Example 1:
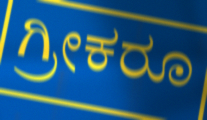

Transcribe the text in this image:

ಗ್ರೀಕರೂ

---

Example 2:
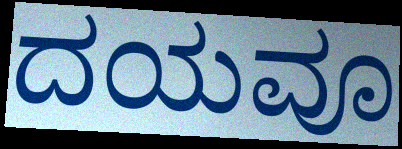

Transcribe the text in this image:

ದಯವೂ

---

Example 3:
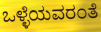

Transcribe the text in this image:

ಒಳ್ಳೆಯವರಂತೆ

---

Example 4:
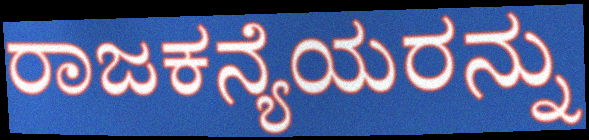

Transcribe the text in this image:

ರಾಜಕನ್ಯೆಯರನ್ನು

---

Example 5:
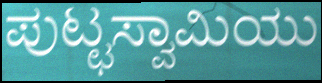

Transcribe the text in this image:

ಪುಟ್ಟಸ್ವಾಮಿಯು